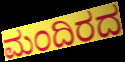
ಮಂದಿರದ